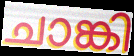
ചാങ്കി